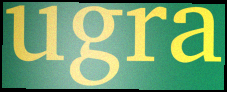
ugra